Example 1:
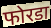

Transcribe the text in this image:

फोरडा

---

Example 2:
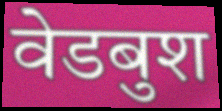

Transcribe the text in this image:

वेडबुश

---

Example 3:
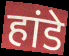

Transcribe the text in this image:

हांडे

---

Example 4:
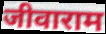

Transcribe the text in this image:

जीवाराम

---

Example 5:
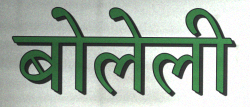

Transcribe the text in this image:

बोलेली